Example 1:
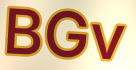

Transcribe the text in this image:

BGv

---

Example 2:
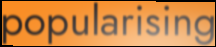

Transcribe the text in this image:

popularising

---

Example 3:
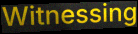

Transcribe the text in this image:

Witnessing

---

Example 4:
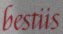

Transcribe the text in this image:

bestiis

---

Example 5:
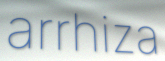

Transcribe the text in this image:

arrhiza